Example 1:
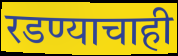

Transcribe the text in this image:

रडण्याचाही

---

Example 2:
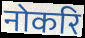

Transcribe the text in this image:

नोकरि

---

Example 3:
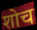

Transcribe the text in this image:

शोच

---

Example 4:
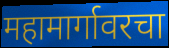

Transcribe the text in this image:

महामार्गावरचा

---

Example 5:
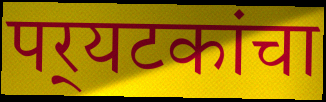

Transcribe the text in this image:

पर्यटकांचा